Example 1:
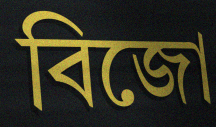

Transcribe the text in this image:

বিজো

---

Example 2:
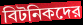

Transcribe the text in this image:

বিটনিকদের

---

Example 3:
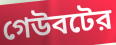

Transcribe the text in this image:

গেউবটের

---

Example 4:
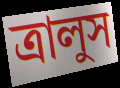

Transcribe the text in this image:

ত্রালুস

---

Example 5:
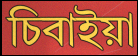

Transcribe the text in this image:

চিবাইয়া